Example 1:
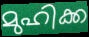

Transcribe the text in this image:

മുഹിക്ക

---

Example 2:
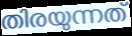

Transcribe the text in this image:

തിരയുന്നത്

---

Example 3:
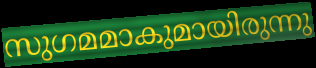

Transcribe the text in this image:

സുഗമമാകുമായിരുന്നു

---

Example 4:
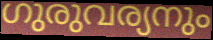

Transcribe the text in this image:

ഗുരുവര്യനും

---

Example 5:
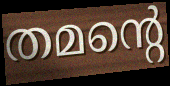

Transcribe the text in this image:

തമന്റെ